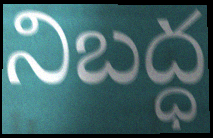
నిబద్ధ